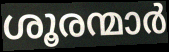
ശൂരന്മാർ